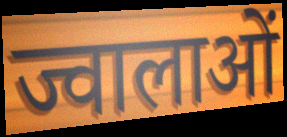
ज्वालाओं